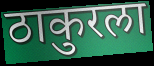
ठाकुरला